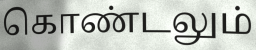
கொண்டலும்